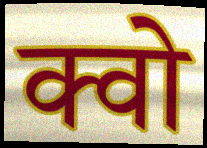
क्वो